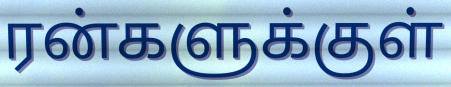
ரன்களுக்குள்